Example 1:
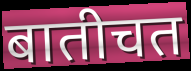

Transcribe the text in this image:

बातीचत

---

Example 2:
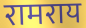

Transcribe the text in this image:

रामराय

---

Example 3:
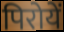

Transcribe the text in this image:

पिरोयें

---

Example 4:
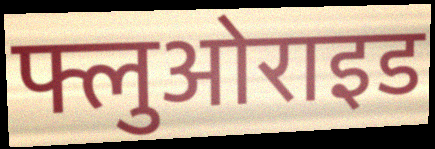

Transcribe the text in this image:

फ्लुओराइड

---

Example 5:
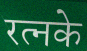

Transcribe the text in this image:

रत्नके